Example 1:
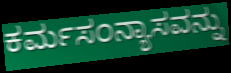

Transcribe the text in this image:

ಕರ್ಮಸಂನ್ಯಾಸವನ್ನು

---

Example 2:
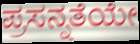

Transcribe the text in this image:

ಪ್ರಸನ್ನತೆಯೇ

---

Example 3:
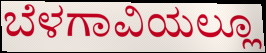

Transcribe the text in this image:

ಬೆಳಗಾವಿಯಲ್ಲೂ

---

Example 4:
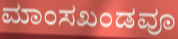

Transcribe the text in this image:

ಮಾಂಸಖಂಡವೂ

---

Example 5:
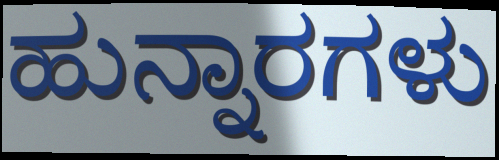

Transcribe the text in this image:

ಹುನ್ನಾರಗಳು